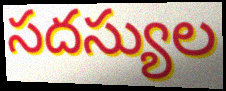
సదస్యుల